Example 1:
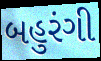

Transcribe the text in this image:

બહુરંગી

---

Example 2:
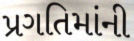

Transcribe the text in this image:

પ્રગતિમાંની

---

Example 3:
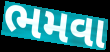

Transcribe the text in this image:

ભમવા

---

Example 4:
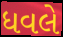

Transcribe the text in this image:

ધવલે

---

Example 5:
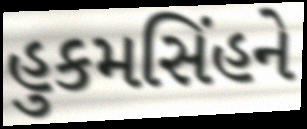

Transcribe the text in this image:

હુકમસિંહને